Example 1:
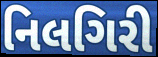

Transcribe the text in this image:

નિલગિરી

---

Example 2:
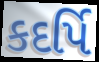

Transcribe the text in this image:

કદર્પિ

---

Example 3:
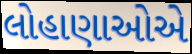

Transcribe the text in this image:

લોહાણાઓએ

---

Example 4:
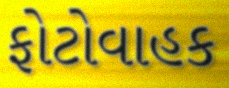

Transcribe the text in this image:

ફોટોવાહક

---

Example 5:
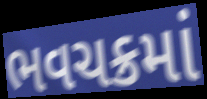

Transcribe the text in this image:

ભવચક્રમાં